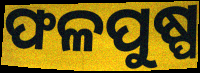
ଫଳପୁଷ୍ପ